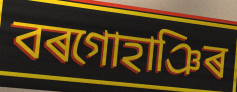
বৰগোহাঞিৰ